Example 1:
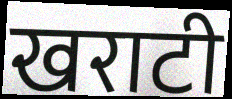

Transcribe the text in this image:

खराटी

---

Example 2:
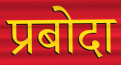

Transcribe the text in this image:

प्रबोदा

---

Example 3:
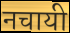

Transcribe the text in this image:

नचायी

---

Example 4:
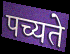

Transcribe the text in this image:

पच्यते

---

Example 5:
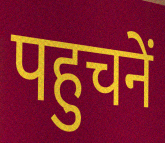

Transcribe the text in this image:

पहुचनें